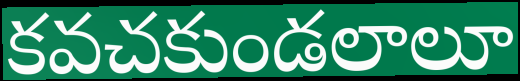
కవచకుండలాలూ